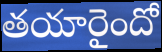
తయారైందో